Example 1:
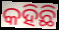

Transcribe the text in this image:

କହିଛି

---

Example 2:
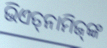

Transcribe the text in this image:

ଭିଏତ୍‌ନାମିଜ୍‌ଙ୍କ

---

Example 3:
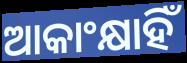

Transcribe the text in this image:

ଆକାଂକ୍ଷାହିଁ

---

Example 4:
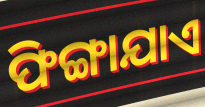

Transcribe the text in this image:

ଫିଙ୍ଗାଯାଏ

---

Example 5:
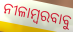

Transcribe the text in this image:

ନୀଳାମ୍ବରବାବୁ